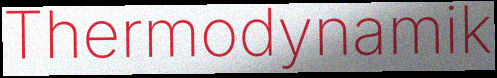
Thermodynamik